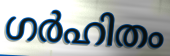
ഗർഹിതം